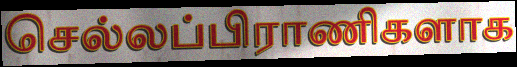
செல்லப்பிராணிகளாக